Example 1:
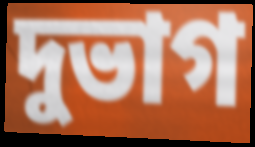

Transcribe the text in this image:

দুভাগ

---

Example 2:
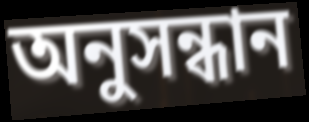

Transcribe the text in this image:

অনুসন্ধান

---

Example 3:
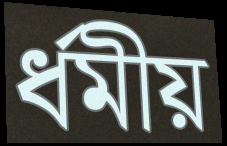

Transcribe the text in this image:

ৰ্ধমীয়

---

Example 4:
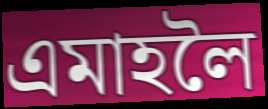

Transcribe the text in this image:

এমাহলৈ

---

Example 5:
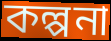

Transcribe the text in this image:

কল্পনা